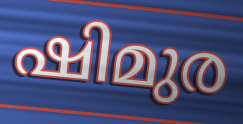
ഷിമുര